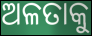
ଅଳତାକୁ